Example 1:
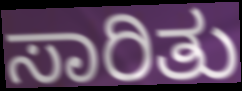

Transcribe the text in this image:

ಸಾರಿತು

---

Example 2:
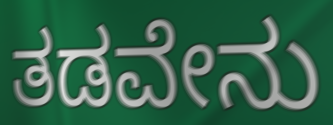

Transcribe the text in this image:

ತಡವೇನು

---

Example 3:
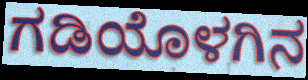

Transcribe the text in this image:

ಗಡಿಯೊಳಗಿನ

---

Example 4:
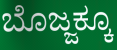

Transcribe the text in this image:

ಬೊಜ್ಜಕ್ಕೂ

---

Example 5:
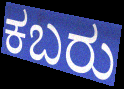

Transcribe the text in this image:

ಕಬರು